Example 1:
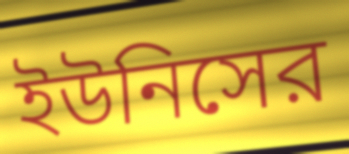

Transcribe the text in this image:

ইউনিসের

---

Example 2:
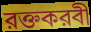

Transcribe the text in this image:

রক্তকরবী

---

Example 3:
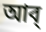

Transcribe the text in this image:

আব্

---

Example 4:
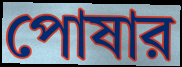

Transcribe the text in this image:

পোষার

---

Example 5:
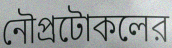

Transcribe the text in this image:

নৌপ্রটোকলের